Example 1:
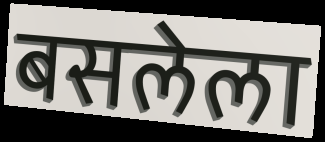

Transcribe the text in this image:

बसलेला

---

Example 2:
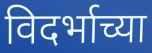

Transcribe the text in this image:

विदर्भाच्या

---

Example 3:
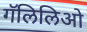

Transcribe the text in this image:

गॅलिलिओ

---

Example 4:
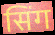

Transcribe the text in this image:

सिंग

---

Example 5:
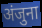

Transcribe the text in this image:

अंजुना